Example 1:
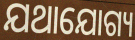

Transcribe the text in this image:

ଯଥାଯୋଗ୍ୟ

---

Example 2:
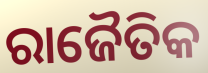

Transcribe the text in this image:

ରାଜୈତିକ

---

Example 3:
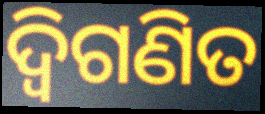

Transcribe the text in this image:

ଦ୍ୱିଗଣିତ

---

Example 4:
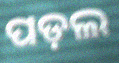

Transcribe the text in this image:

ପଡ଼ଲ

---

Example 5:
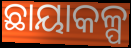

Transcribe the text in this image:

ଛାୟାକଳ୍ପ